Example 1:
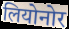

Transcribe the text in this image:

लियोनोर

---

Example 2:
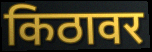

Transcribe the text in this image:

किठावर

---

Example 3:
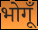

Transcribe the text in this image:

भोगूँ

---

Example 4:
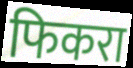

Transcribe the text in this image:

फिकरा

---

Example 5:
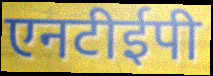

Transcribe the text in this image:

एनटीईपी